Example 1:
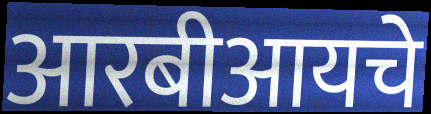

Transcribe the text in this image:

आरबीआयचे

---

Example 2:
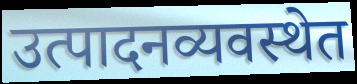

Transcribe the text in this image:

उत्पादनव्यवस्थेत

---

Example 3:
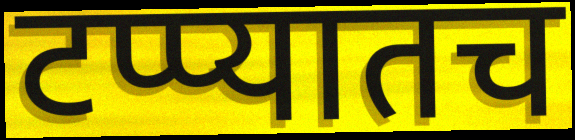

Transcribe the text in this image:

टप्प्यातच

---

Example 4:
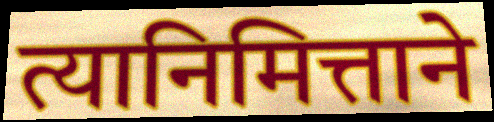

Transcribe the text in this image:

त्यानिमित्ताने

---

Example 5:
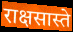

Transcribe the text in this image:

राक्षसास्ते